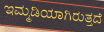
ಇಮ್ಮಡಿಯಾಗಿರುತ್ತದೆ